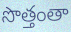
సొత్తంతా